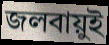
জলবায়ুই